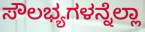
ಸೌಲಭ್ಯಗಳನ್ನೆಲ್ಲಾ